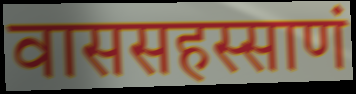
वाससहस्साणं